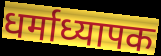
धर्माध्यापक